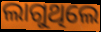
ଲାଗୁଥିଲେ